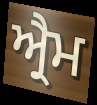
ਐ੍ਰਮ